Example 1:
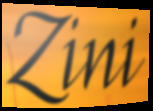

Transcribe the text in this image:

Zini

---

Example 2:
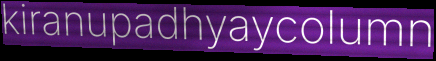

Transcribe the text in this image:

kiranupadhyaycolumn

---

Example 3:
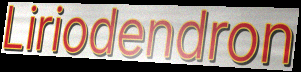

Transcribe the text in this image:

Liriodendron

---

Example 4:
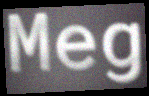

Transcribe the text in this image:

Meg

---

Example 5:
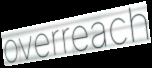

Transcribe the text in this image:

overreach